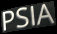
PSIA